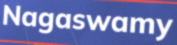
Nagaswamy